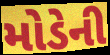
મોડેની